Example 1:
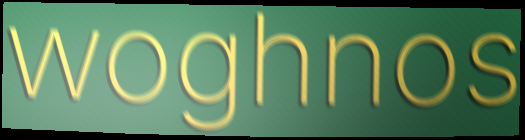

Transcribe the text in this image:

woghnos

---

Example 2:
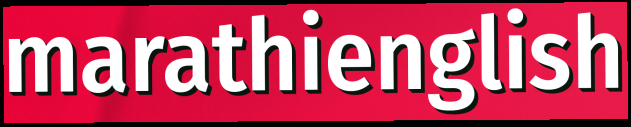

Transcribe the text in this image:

marathienglish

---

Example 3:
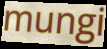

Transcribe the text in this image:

mungi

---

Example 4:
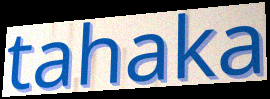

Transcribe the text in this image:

tahaka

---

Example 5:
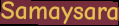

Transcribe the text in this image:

Samaysara